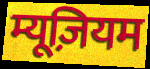
म्यूज़ियम